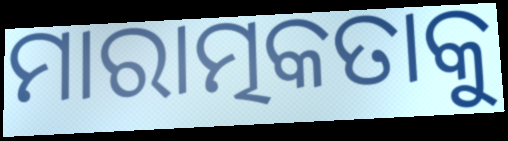
ମାରାତ୍ମକତାକୁ